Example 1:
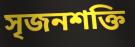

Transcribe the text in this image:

সৃজনশক্তি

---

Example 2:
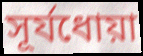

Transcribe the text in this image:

সূর্যধোয়া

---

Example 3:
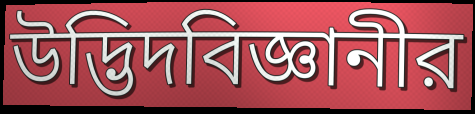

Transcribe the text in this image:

উদ্ভিদবিজ্ঞানীর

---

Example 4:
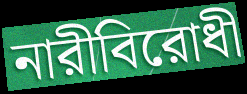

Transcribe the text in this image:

নারীবিরোধী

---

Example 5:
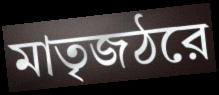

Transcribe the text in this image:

মাতৃজঠরে